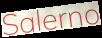
Salerno